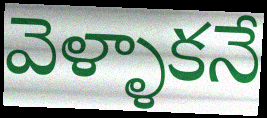
వెళ్ళాకనే